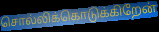
சொல்லிக்கொடுக்கிறேன்